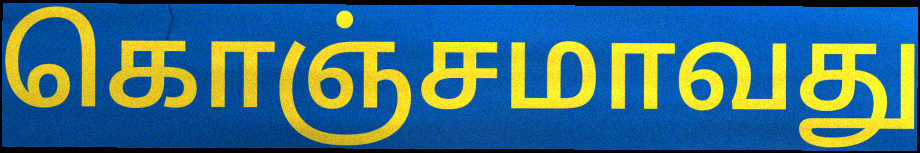
கொஞ்சமாவது